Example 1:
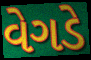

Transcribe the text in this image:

વેગડે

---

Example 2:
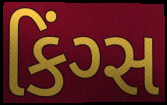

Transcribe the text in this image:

કિંગ્સ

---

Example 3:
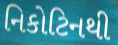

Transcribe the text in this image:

નિકોટિનથી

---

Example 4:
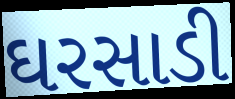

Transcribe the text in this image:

ઘરસાડી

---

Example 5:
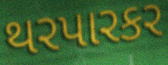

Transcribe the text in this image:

થરપારકર